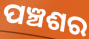
ପଞ୍ଚଶର